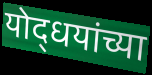
योद्धयांच्या